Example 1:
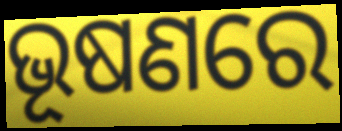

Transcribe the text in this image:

ଭୂଷଣରେ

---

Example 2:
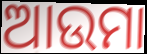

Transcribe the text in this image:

ଆଉମା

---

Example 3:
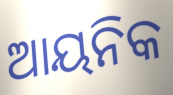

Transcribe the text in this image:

ଆୟନିକ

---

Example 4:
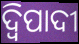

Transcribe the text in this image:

ଦ୍ୱିପାଦୀ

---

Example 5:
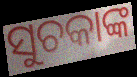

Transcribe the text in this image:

ସୁଚକାଙ୍କ